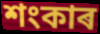
শংকাৰ